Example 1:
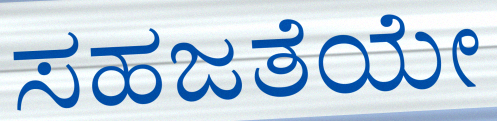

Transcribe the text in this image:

ಸಹಜತೆಯೇ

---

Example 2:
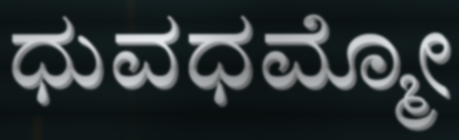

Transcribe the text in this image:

ಧುವಧಮ್ಮೋ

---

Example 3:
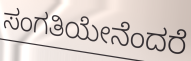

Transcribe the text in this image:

ಸಂಗತಿಯೇನೆಂದರೆ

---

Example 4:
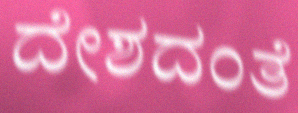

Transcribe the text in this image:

ದೇಶದಂತೆ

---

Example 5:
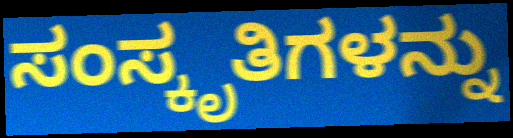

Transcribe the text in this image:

ಸಂಸ್ಕೃತಿಗಳನ್ನು